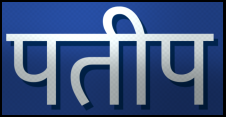
पतीप